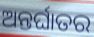
ଅନ୍ତର୍ଘାତର